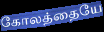
கோலத்தையே